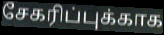
சேகரிப்புக்காக